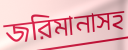
জরিমানাসহ